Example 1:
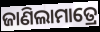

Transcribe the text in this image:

ଜାଣିଲାମାତ୍ରେ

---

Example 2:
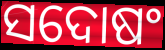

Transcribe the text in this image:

ସଦୋଷଂ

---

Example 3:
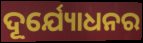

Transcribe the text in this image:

ଦୂର୍ଯ୍ୟୋଧନର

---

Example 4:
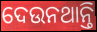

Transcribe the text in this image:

ଦେଉନଥାନ୍ତି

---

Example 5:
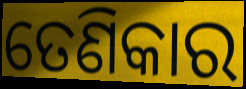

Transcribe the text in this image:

ତେଣିକାର